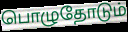
பொழுதோடும்